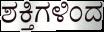
ಶಕ್ತಿಗಳಿಂದ